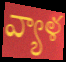
వ్యాళ